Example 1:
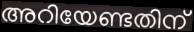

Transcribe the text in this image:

അറിയേണ്ടതിന്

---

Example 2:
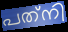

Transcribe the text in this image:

പത്‌നി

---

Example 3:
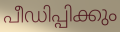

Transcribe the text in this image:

പീഡിപ്പിക്കും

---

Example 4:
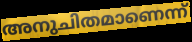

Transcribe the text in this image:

അനുചിതമാണെന്ന്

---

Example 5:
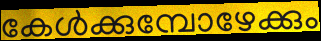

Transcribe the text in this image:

കേൾക്കുമ്പോഴേക്കും